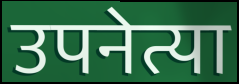
उपनेत्या